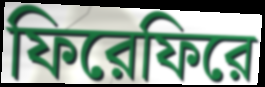
ফিরেফিরে